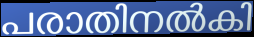
പരാതിനൽകി